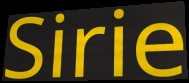
Sirie